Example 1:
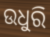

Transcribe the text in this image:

ଉଧୁରି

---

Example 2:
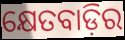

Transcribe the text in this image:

କ୍ଷେତବାଡ଼ିର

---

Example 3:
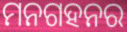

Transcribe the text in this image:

ମନଗହନର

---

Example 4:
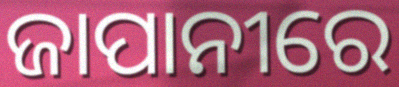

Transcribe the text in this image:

ଜାପାନୀରେ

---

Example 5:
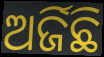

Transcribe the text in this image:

ଅର୍ଜିଛି